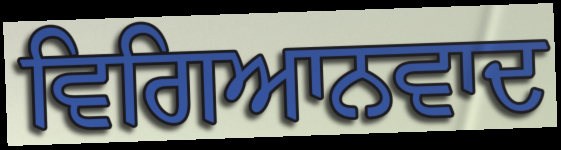
ਵਿਗਿਆਨਵਾਦ